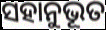
ସହାନୁଭୂତ